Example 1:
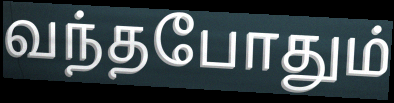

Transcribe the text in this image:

வந்தபோதும்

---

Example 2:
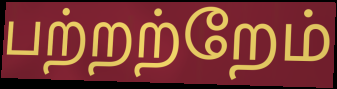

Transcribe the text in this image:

பற்றற்றேம்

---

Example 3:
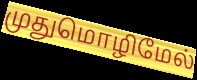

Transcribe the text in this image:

முதுமொழிமேல்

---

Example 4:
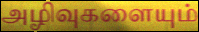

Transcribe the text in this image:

அழிவுகளையும்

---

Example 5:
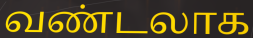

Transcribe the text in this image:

வண்டலாக